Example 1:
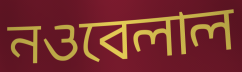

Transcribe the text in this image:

নওবেলাল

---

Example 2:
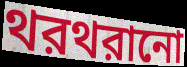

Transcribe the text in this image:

থরথরানো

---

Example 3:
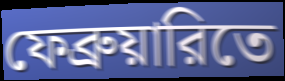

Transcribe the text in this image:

ফেব্রুয়ারিতে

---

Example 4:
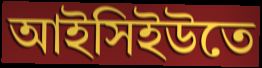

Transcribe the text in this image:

আইসিইউতে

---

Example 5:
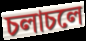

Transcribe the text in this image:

চলাচলে